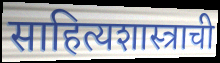
साहित्यशास्त्राची